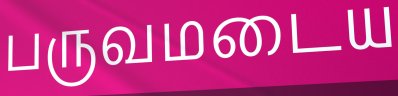
பருவமடைய